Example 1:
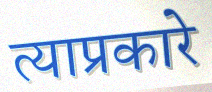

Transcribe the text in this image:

त्याप्रकारे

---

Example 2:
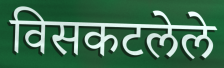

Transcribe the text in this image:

विसकटलेले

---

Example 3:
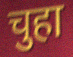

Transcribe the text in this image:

चुहा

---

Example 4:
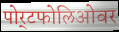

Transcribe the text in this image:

पोर्टफोलिओवर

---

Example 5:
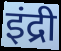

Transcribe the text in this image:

इंद्री